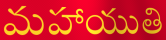
మహాయుతి